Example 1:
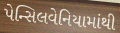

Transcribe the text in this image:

પેન્સિલવેનિયામાંથી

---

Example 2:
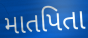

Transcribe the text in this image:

માતપિતા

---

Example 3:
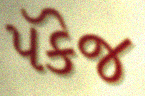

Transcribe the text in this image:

પૅકેજ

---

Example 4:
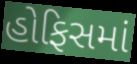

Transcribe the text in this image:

હોફિસમાં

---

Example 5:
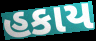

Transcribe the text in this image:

હકાય